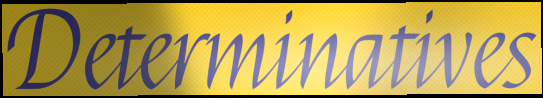
Determinatives